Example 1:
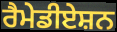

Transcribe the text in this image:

ਰੈਮੇਡੀਏਸ਼ਨ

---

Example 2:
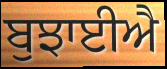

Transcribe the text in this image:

ਬੁਝਾਈਐ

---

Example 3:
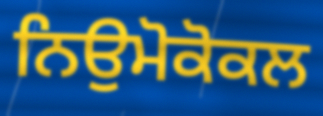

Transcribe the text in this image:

ਨਿਉਮੋਕੋਕਲ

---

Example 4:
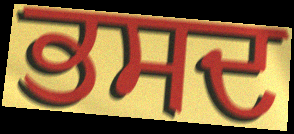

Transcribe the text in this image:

ਭਸਦ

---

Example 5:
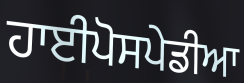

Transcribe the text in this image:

ਹਾਈਪੋਸਪੇਡੀਆ